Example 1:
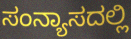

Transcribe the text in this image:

ಸಂನ್ಯಾಸದಲ್ಲಿ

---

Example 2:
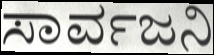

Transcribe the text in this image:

ಸಾರ್ವಜನಿ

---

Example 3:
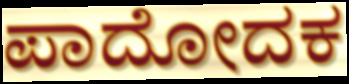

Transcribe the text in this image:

ಪಾದೋದಕ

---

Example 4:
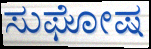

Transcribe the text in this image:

ಸುಘೋಷ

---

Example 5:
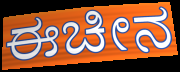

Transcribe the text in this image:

ಈಚೀನ